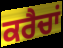
ਕਰੈਚਾਂ